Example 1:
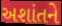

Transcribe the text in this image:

અશાંતને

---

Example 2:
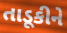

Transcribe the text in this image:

તાડૂકીને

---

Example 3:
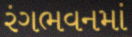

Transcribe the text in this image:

રંગભવનમાં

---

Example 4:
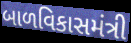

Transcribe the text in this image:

બાળવિકાસમંત્રી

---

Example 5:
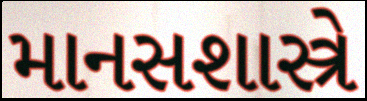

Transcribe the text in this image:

માનસશાસ્ત્રે